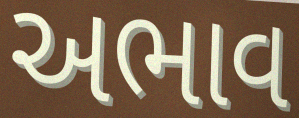
અભાવ